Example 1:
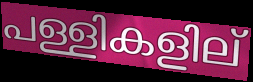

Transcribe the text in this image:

പള്ളികളില്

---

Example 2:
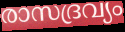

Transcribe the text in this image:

രാസദ്രവ്യം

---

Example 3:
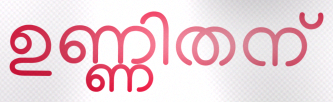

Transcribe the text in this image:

ഉണ്ണിതന്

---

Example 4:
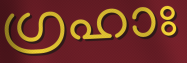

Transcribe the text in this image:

ഗ്രഹാഃ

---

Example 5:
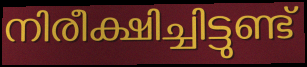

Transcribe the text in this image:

നിരീക്ഷിച്ചിട്ടുണ്ട്